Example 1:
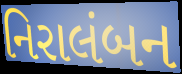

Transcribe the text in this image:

નિરાલંબન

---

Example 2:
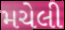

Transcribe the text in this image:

મચેલી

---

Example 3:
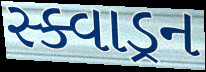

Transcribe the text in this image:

સ્ક્વાડ્રન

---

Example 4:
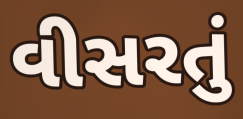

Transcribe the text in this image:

વીસરતું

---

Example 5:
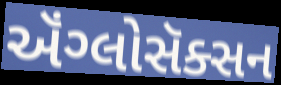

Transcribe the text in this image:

ઍંગ્લોસૅક્સન